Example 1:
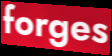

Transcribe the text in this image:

forges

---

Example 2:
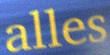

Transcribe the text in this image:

alles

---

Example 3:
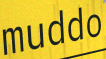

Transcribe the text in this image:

muddo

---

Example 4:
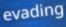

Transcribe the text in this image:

evading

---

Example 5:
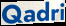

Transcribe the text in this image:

Qadri